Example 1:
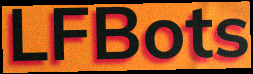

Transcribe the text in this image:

LFBots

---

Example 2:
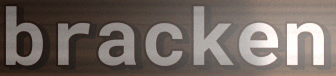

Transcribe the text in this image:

bracken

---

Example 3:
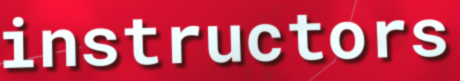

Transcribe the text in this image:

instructors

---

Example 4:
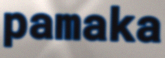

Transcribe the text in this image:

pamaka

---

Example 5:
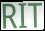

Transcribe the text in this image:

RIT